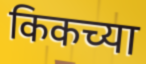
किकच्या